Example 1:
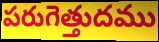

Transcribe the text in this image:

పరుగెత్తుదము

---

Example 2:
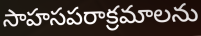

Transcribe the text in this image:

సాహసపరాక్రమాలను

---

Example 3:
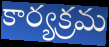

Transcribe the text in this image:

కార్యక్రమ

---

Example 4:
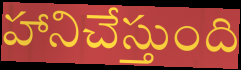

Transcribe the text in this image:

హానిచేస్తుంది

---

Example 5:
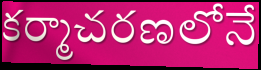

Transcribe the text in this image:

కర్మాచరణలోనే